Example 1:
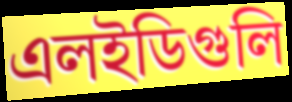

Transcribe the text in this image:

এলইডিগুলি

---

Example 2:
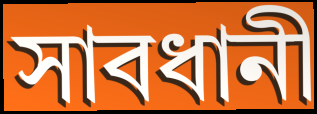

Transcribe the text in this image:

সাবধানী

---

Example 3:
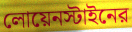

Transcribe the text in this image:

লোয়েনস্টাইনের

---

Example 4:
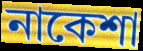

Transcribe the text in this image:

নাকেশা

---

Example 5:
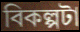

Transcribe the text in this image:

বিকল্পটা